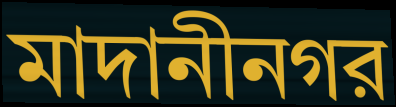
মাদানীনগর